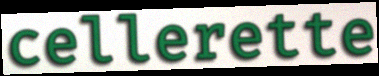
cellerette